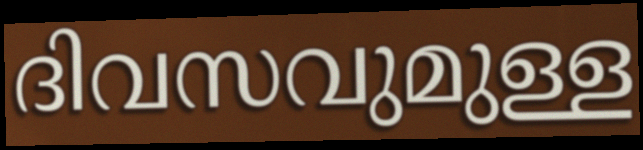
ദിവസവുമുള്ള